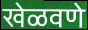
खेळवणे